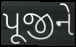
પૂજીને